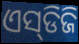
ଏସ୍‌ଡିଜି